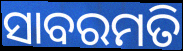
ସାବରମତି